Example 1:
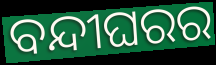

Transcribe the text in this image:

ବନ୍ଦୀଘରର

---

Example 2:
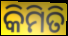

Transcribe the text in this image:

କିମିତି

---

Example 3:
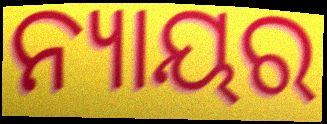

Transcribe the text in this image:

ନ୍ୟାୟର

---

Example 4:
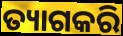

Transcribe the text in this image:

ତ୍ୟାଗକରି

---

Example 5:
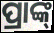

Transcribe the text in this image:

ପ୍ରାଙ୍କ୍